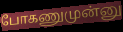
போகணுமுன்னு